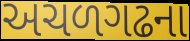
અચળગઢના